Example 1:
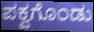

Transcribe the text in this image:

ಪಕ್ವಗೊಂಡು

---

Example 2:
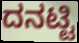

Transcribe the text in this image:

ದನಟ್ಟಿ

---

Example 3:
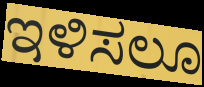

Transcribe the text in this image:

ಇಳಿಸಲೂ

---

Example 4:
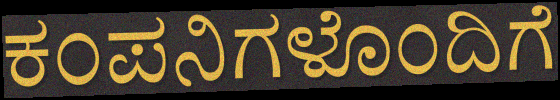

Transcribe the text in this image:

ಕಂಪನಿಗಳೊಂದಿಗೆ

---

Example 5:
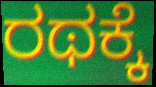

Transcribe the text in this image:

ರಥಕ್ಕೆ